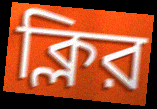
ক্লির